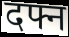
दफ्न